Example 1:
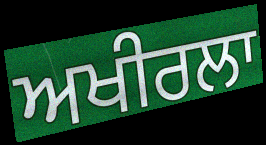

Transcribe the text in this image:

ਅਖੀਰਲਾ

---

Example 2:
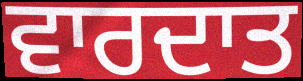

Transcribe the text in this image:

ਵਾਰਦਾਤ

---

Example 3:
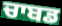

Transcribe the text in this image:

ਚਾਬਡ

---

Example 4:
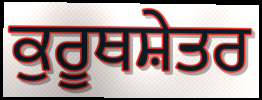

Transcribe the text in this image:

ਕੁਰੂਥਸ਼ੇਤਰ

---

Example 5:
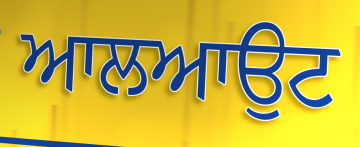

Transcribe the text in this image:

ਆਲਆਉਟ